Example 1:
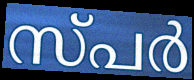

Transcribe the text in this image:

സ്പർ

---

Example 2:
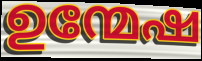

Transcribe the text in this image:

ഉന്മേഷ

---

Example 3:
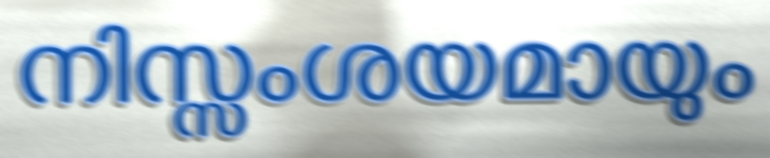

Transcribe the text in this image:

നിസ്സംശയമായും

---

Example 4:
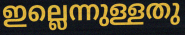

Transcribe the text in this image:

ഇല്ലെന്നുള്ളതു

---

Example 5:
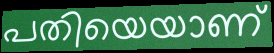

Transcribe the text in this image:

പതിയെയാണ്